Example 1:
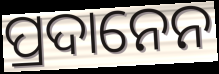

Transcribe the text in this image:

ପ୍ରଦାନେନ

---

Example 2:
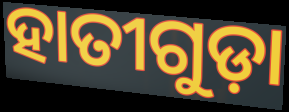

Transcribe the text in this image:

ହାତୀଗୁଡ଼ା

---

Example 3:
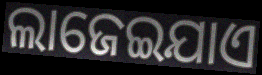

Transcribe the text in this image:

ଲାଜେଇଯାଏ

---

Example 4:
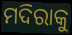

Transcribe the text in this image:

ମଦିରାକୁ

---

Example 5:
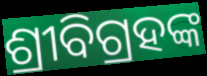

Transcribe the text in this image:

ଶ୍ରୀବିଗ୍ରହଙ୍କ